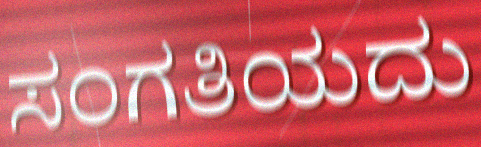
ಸಂಗತಿಯದು